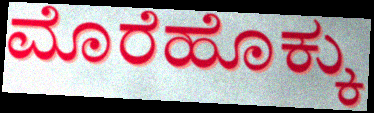
ಮೊರೆಹೊಕ್ಕು